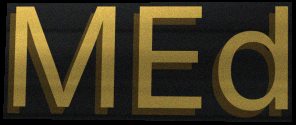
MEd